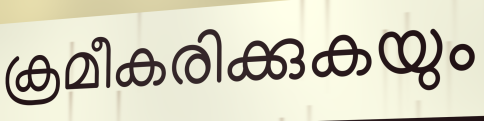
ക്രമീകരിക്കുകയും